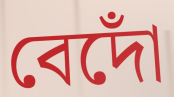
বেদোঁ